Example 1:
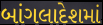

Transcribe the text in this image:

બાંગલાદેશમાં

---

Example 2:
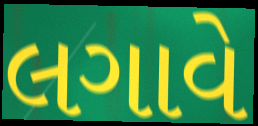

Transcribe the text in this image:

લગાવે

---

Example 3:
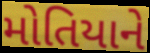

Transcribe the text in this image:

મોતિયાને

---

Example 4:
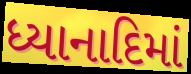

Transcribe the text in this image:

ધ્યાનાદિમાં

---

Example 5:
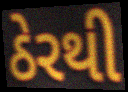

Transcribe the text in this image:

ઠેરથી